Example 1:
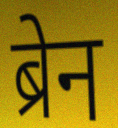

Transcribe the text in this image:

ब्रेन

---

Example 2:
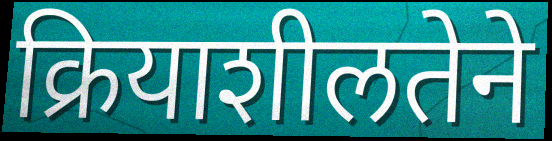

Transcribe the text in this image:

क्रियाशीलतेने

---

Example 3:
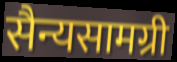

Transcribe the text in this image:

सैन्यसामग्री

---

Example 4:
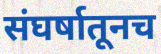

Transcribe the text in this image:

संघर्षातूनच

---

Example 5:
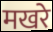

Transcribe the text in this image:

मखरे